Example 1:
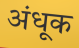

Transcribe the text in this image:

अंधूक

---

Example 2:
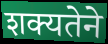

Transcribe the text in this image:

शक्यतेने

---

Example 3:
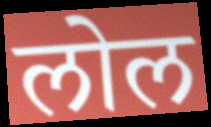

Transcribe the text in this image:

लोल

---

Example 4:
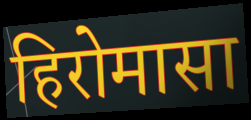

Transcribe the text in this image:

हिरोमासा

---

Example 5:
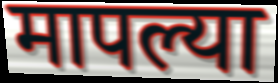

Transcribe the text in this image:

मापल्या